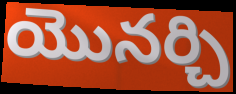
యొనర్చి